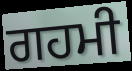
ਗਹਮੀ